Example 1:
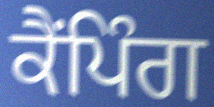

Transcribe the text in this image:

ਕੈਂਪਿੰਗ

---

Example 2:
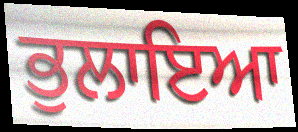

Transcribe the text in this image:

ਭੁਲਾਇਆ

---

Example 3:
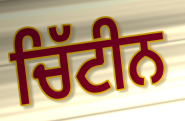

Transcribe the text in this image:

ਚਿੱਟੀਨ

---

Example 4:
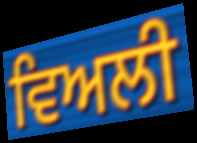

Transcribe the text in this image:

ਵਿਅਲੀ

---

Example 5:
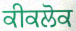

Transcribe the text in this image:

ਕੀਕਲੋਕ